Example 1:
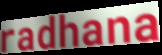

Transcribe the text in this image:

radhana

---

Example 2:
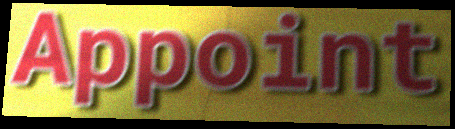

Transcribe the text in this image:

Appoint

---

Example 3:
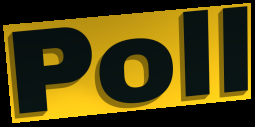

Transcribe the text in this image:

Poll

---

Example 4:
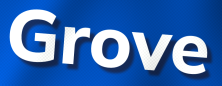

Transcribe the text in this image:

Grove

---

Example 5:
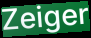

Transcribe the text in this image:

Zeiger